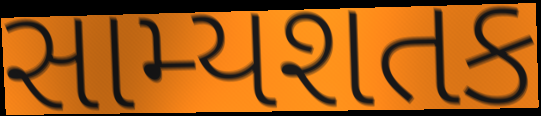
સામ્યશતક